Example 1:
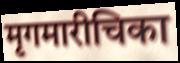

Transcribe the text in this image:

मृगमारीचिका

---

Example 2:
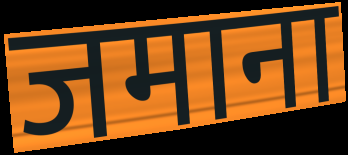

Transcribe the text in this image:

जमाना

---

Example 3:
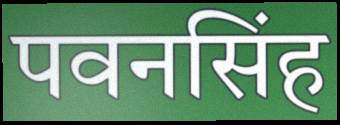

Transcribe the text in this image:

पवनसिंह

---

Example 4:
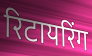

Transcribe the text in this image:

रिटायरिंग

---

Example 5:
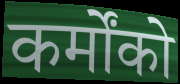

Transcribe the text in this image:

कर्मोंको